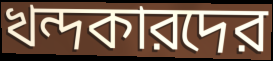
খন্দকারদের